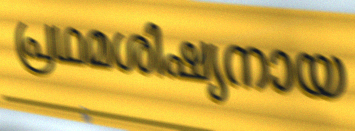
പ്രഥമശിഷ്യനായ